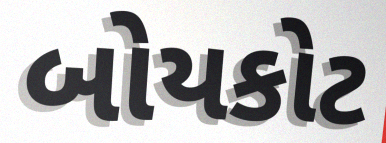
બોયકોટ